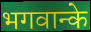
भगवान्के